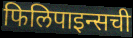
फिलिपाइन्सची